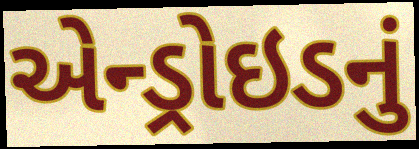
એન્ડ્રોઇડનું